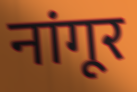
नांगूर